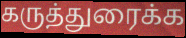
கருத்துரைக்க